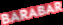
BARABAR